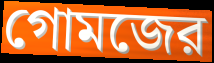
গোমজের